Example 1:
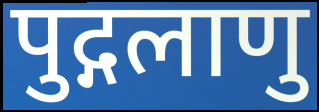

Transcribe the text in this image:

पुद्गलाणु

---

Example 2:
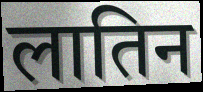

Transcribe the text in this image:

लातिन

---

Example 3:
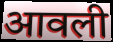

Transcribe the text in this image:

आवली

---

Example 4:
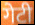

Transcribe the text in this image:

गेटी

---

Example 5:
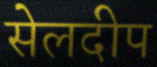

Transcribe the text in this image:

सेलदीप